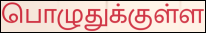
பொழுதுக்குள்ள